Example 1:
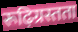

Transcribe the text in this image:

रूढ़िग्रस्तता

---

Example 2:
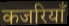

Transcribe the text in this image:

कजरियाँ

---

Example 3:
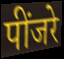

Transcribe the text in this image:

पींजरे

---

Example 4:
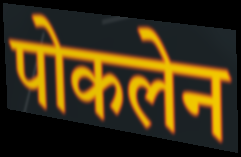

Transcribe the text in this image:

पोकलेन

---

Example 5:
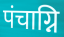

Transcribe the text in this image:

पंचाग्नि